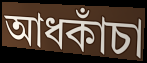
আধকাঁচা